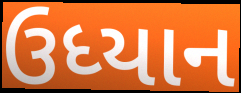
ઉધ્યાન